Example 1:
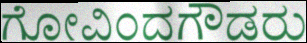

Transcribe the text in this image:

ಗೋವಿಂದಗೌಡರು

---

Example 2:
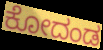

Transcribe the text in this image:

ಕೋದಂಡ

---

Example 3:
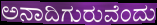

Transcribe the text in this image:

ಅನಾದಿಗುರುವೆಂದು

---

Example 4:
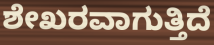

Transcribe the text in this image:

ಶೇಖರವಾಗುತ್ತಿದೆ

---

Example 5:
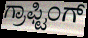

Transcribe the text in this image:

ಗ್ರಾಫ್ಟಿಂಗ್